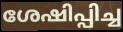
ശേഷിപ്പിച്ച